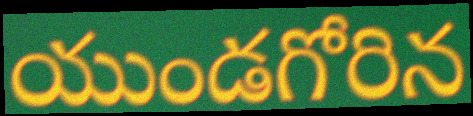
యుండగోరిన